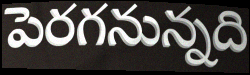
పెరగనున్నది